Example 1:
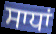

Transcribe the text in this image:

ਸਾਧਾਂ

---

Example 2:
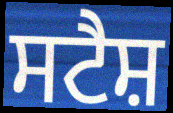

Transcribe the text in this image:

ਸਟੈਸ਼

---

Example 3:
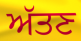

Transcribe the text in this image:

ਅੱਤਣ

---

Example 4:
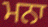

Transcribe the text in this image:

ਮਨਾ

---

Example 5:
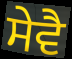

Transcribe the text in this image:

ਸੇਵੈ